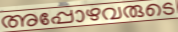
അപ്പോഴവരുടെ